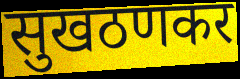
सुखठणकर